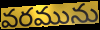
వరమును